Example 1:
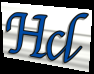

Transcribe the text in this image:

Hcl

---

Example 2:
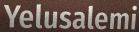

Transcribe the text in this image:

Yelusalemi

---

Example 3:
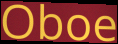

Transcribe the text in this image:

Oboe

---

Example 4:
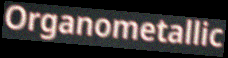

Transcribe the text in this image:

Organometallic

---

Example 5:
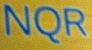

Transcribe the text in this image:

NQR